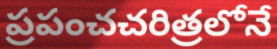
ప్రపంచచరిత్రలోనే